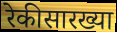
रेकीसारख्या